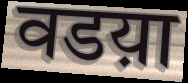
वडय़ा